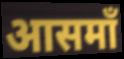
आसमाँ